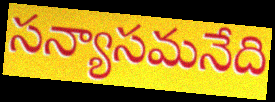
సన్యాసమనేది